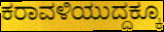
ಕರಾವಳಿಯುದ್ದಕ್ಕೂ